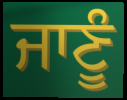
ਜਾਣੂੰ